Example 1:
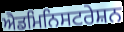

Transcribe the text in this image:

ਐਡਮਿਨਿਸਟਰੇਸ਼ਨ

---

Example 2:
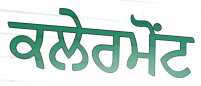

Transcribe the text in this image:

ਕਲੇਰਮੋਂਟ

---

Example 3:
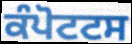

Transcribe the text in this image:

ਕੰਪੋਟਟਸ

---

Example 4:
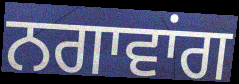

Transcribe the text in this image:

ਨਗਾਵਾਂਗ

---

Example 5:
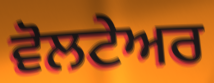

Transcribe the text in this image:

ਵੋਲਟੇਅਰ